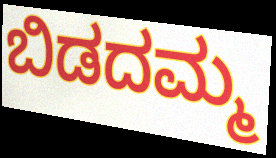
ಬಿಡದಮ್ಮ